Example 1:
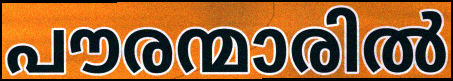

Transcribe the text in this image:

പൗരന്മാരിൽ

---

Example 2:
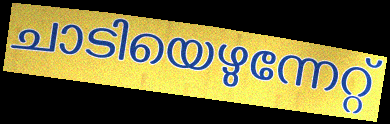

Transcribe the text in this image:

ചാടിയെഴുന്നേറ്റ്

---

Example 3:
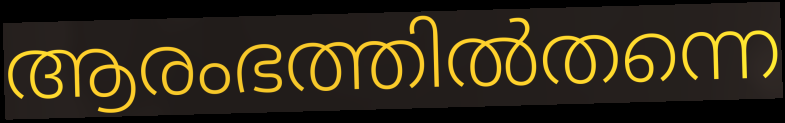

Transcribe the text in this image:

ആരംഭത്തിൽതന്നെ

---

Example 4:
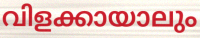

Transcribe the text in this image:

വിളക്കായാലും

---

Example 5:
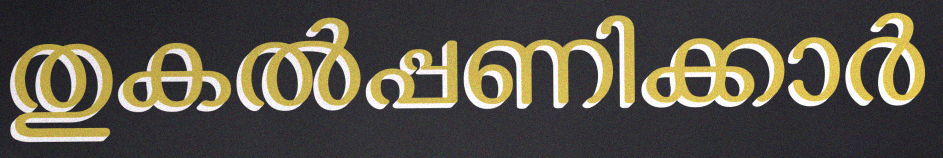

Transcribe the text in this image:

തുകൽപ്പണിക്കാർ